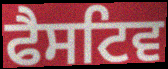
ਫੈਸਟਿਵ